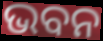
ଭବନ